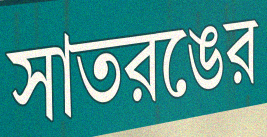
সাতরঙের